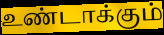
உண்டாக்கும்